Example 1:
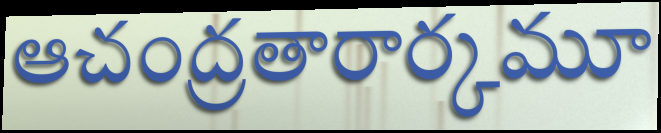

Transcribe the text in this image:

ఆచంద్రతారార్కమూ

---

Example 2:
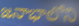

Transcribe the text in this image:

జనాభాలోని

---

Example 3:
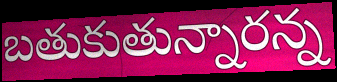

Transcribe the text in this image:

బతుకుతున్నారన్న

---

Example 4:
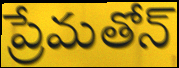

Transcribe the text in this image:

ప్రేమతోన్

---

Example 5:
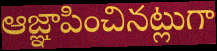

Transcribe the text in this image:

ఆజ్ఞాపించినట్లుగా